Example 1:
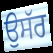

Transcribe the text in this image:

ਉਸੱਰ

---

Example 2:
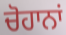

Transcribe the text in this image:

ਚੋਹਾਨਾਂ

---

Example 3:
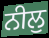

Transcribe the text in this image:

ਨੀਲੁ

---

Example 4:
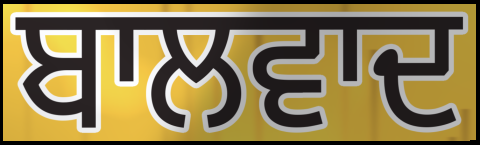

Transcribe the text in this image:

ਬਾਲਵਾਦ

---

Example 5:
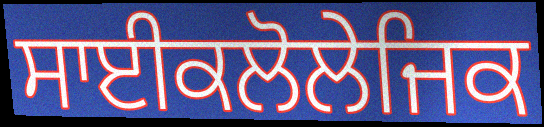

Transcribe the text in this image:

ਸਾਈਕਲੋਲੇਜਿਕ